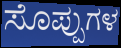
ಸೊಪ್ಪುಗಳ